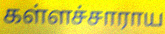
கள்ளச்சாராய